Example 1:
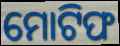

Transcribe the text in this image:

ମୋଟିଫ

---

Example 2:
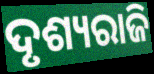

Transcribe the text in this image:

ଦୃଶ୍ୟରାଜି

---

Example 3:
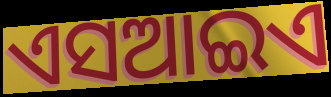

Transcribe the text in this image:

ଏସଆଇଏ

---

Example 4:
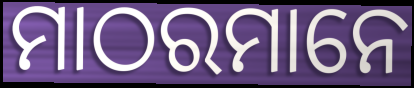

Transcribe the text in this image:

ମାଠରମାନେ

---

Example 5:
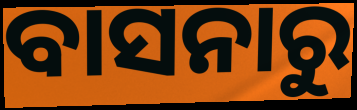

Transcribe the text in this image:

ବାସନାରୁ